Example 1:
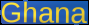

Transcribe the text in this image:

Ghana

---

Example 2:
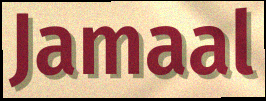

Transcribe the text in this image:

Jamaal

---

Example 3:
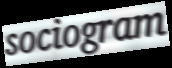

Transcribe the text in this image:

sociogram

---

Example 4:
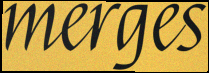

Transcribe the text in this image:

merges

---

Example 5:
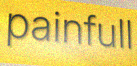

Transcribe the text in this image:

painfull